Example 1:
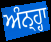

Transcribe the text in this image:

ਅੰਨ੍ਹ੍ਹਾ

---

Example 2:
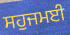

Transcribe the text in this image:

ਸਹੁਜਮਈ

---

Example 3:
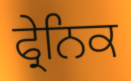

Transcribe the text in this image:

ਫ੍ਰੇਨਿਕ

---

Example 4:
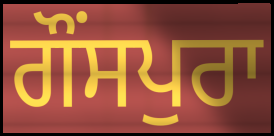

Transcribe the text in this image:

ਗੌਂਸਪੁਰਾ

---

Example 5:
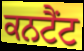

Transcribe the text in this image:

ਕਨਟੈਂਟ